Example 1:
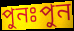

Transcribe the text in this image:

পুনঃপুন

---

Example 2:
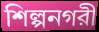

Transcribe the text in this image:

শিল্পনগরী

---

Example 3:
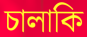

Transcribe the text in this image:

চালাকি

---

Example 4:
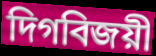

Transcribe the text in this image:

দিগবিজয়ী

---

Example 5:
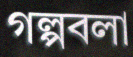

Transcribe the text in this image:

গল্পবলা